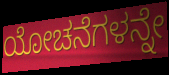
ಯೋಚನೆಗಳನ್ನೇ